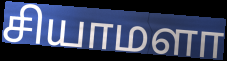
சியாமளா